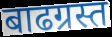
बाढग्रस्त